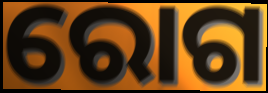
ରୋଗ